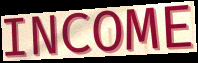
INCOME